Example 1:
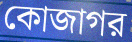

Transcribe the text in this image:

কোজাগর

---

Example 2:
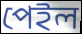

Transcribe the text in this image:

পেইল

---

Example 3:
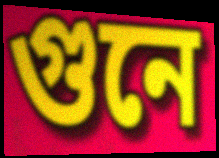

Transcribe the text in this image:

গুনে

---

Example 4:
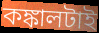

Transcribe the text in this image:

কঙ্কালটাই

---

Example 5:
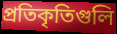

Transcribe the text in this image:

প্রতিকৃতিগুলি